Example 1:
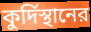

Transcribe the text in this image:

কুর্দিস্থানের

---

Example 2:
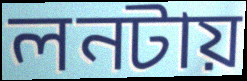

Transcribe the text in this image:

লনটায়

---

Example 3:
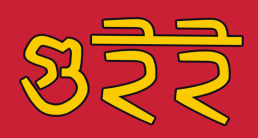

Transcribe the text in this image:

গুইই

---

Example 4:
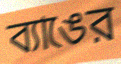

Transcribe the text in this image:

ব্যাঙের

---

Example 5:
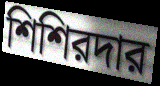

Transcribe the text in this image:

শিশিরদার